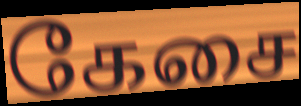
கேசை